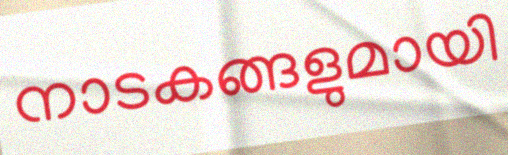
നാടകങ്ങളുമായി